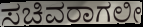
ಸಚಿವರಾಗಲೀ